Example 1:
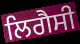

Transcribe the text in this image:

ਲਿਗੈਸੀ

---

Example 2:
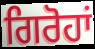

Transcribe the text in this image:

ਗਿਰੋਹਾਂ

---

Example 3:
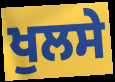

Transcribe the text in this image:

ਖੁਲਸੇ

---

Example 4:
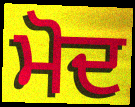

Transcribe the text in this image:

ਮੋਦ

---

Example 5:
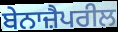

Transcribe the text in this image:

ਬੇਨਾਜ਼ੈਪਰੀਲ